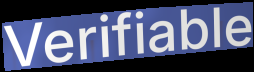
Verifiable